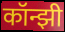
कॉन्झी